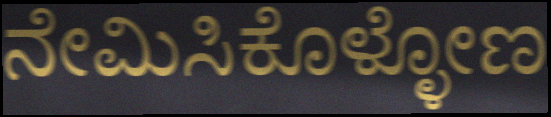
ನೇಮಿಸಿಕೊಳ್ಳೋಣ